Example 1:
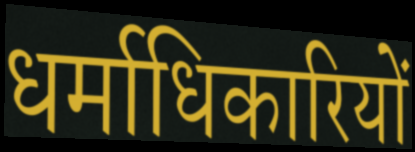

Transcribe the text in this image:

धर्माधिकारियों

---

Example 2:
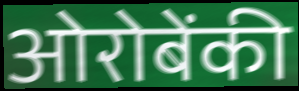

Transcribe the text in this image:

ओरोबेंकी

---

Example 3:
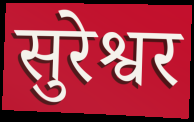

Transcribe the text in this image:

सुरेश्वर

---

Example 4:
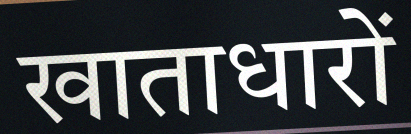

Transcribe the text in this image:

खाताधारों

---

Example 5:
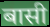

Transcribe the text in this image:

बासी